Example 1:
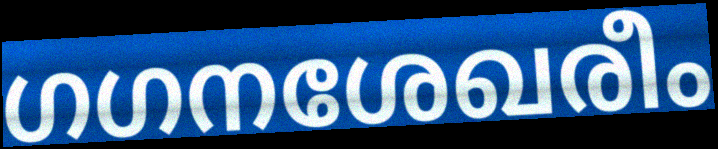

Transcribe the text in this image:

ഗഗനശേഖരീം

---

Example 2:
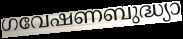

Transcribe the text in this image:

ഗവേഷണബുദ്ധ്യാ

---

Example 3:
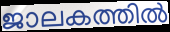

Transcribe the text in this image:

ജാലകത്തിൽ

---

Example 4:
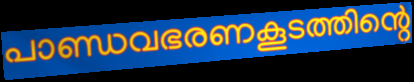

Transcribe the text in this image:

പാണ്ഡവഭരണകൂടത്തിന്റെ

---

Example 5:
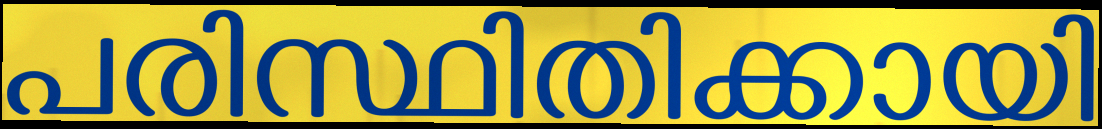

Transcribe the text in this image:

പരിസ്ഥിതിക്കായി